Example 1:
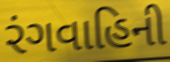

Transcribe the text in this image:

રંગવાહિની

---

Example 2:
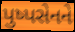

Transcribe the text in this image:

પુષ્પસેનને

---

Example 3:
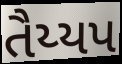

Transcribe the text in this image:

તૈય્યપ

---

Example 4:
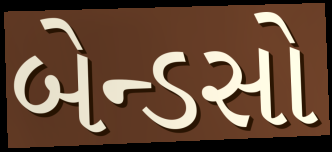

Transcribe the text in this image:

બેન્ડસો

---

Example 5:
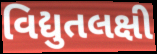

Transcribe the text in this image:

વિદ્યુતલક્ષી